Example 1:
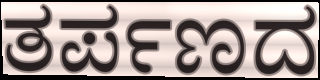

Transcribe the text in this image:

ತರ್ಪಣದ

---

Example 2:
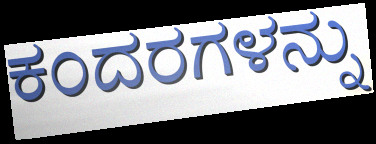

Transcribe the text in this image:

ಕಂದರಗಳನ್ನು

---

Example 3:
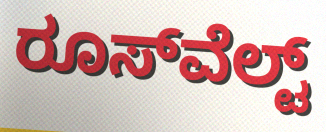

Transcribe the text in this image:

ರೂಸ್‍ವೆಲ್ಟ್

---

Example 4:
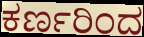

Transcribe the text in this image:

ಕರ್ಣರಿಂದ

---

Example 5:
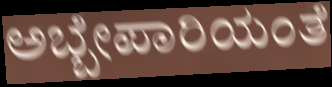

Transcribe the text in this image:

ಅಬ್ಬೇಪಾರಿಯಂತೆ